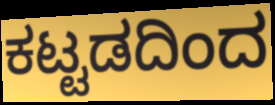
ಕಟ್ಟಡದಿಂದ